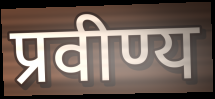
प्रवीण्य